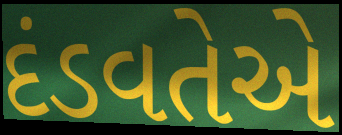
દંડવતેએ